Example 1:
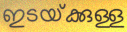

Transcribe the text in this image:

ഇടയ്‌ക്കുള്ള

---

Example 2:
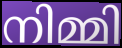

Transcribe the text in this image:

നിമ്മി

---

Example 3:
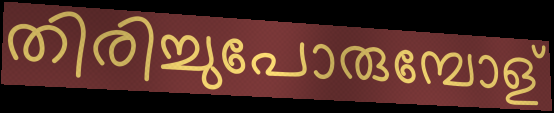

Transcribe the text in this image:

തിരിച്ചുപോരുമ്പോള്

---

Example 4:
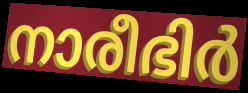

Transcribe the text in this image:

നാരീഭിർ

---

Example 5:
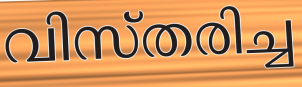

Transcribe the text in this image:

വിസ്തരിച്ച